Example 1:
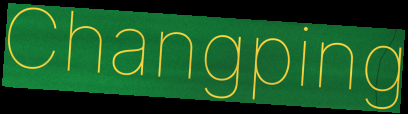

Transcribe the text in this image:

Changping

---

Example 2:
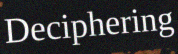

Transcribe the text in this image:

Deciphering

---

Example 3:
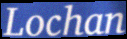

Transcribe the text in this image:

Lochan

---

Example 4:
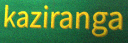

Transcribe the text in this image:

kaziranga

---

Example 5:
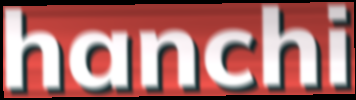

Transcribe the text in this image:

hanchi